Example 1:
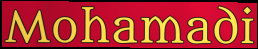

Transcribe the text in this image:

Mohamadi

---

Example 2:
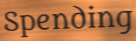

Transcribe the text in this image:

Spending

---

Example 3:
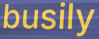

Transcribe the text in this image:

busily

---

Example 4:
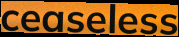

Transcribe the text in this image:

ceaseless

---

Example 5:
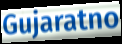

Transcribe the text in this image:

Gujaratno